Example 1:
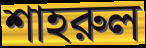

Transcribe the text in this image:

শাহরুল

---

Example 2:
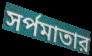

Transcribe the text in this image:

সর্পমাতার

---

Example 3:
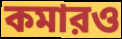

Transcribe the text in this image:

কমারও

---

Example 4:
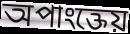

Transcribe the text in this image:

অপাংক্তেয়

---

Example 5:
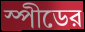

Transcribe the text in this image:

স্পীডের